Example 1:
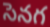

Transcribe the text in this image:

సెనగ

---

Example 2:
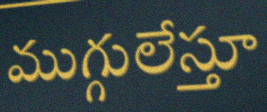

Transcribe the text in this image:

ముగ్గులేస్తూ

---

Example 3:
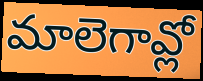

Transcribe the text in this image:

మాలెగావ్లో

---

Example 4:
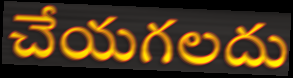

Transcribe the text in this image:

చేయగలదు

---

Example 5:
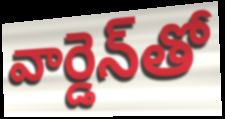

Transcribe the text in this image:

వార్డెన్‌తో